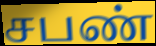
சபண்